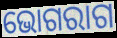
ଭୋଗରାଗ